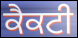
ਕੈਕਟੀ